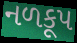
નળકૂપ